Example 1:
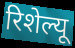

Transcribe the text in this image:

रिशेल्यू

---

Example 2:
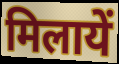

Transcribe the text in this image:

मिलायें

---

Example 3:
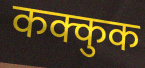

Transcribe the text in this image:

कक्कुक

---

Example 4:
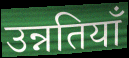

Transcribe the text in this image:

उन्नतियाँ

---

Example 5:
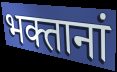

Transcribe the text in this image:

भक्तानां